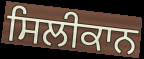
ਸਿਲੀਕਾਨ